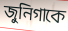
জুনিগাকে